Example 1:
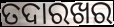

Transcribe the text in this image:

ତଦାରଖର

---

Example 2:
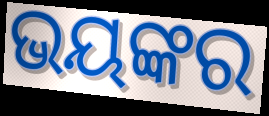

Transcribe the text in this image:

ଭୟଙ୍କର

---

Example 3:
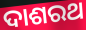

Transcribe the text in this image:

ଦାଶରଥ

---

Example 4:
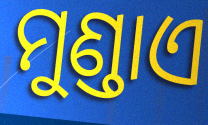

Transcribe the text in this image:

ମୁଣ୍ଡାଏ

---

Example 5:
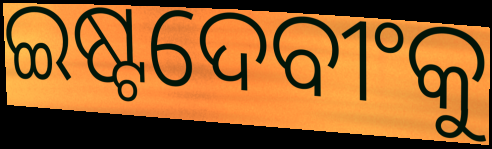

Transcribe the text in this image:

ଇଷ୍ଟଦେବୀଂକୁ